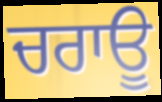
ਚਰਾਊ